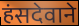
हंसदेवाने